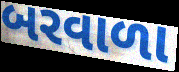
બરવાળા